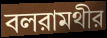
বলরামথীর